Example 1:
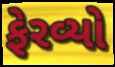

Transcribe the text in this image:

ફેરવ્યો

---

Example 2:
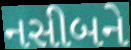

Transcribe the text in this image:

નસીબને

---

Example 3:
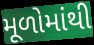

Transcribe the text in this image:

મૂળોમાંથી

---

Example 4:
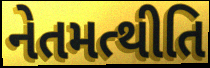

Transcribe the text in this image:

નેતમત્થીતિ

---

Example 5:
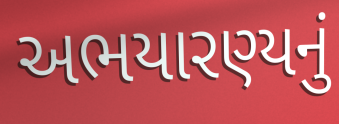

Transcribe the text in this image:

અભયારણ્યનું